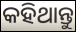
କହିଥାନ୍ତୁ